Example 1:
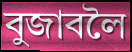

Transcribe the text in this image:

বুজাবলৈ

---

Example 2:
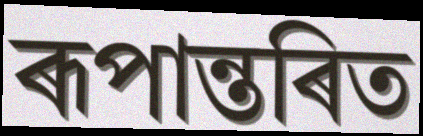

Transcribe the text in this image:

ৰূপান্তৰিত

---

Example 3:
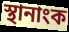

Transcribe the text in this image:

স্থানাংক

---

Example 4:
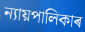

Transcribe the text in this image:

ন্যায়পালিকাৰ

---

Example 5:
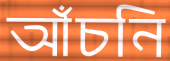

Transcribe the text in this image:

আঁচনি